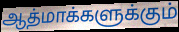
ஆத்மாக்களுக்கும்